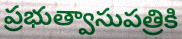
ప్రభుత్వాసుపత్రికి